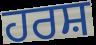
ਹਰਸ਼